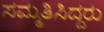
ಸಮ್ಮತಿಸಿದ್ದರು